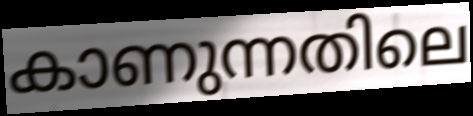
കാണുന്നതിലെ